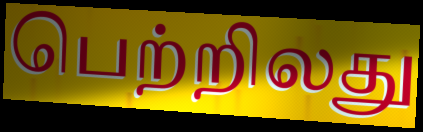
பெற்றிலது